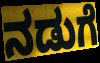
ನಡುಗೆ